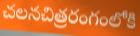
చలనచిత్రరంగంలోకి